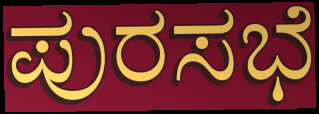
ಪುರಸಭೆ